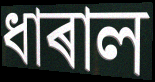
ধাৰাল